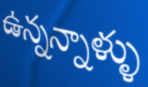
ఉన్నన్నాళ్ళు